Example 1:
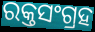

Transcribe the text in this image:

ରକ୍ତସଂଗ୍ରହ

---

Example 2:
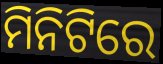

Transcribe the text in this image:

ମିନିଟିରେ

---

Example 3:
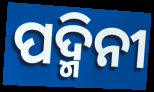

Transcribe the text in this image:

ପଦ୍ମିନୀ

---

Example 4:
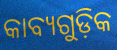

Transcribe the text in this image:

କାବ୍ୟଗୁଡ଼ିକ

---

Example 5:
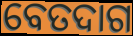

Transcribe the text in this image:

ବେତଦାଗ